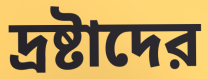
দ্রষ্টাদের